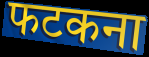
फटकना